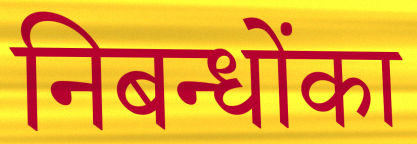
निबन्धोंका